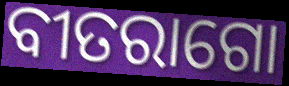
ବୀତରାଗୋ